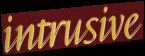
intrusive